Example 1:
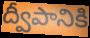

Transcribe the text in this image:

ద్వీపానికి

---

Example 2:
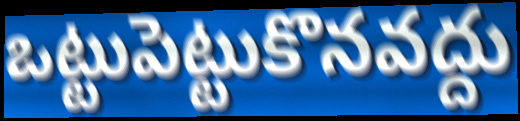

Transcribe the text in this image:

ఒట్టుపెట్టుకొనవద్దు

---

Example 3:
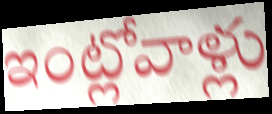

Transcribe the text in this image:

ఇంట్లోవాళ్లు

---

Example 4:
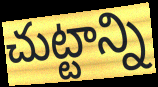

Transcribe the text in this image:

చుట్టాన్ని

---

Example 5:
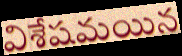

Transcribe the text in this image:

విశేషమయిన